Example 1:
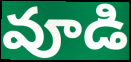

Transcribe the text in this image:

వూడి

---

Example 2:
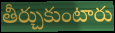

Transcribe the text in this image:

తీర్చుకుంటారు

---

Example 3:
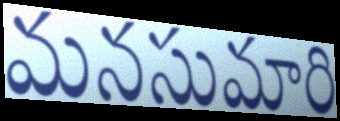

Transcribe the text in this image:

మనసుమారి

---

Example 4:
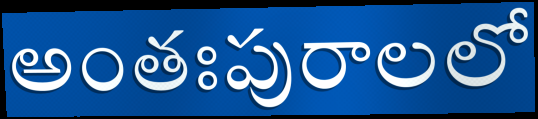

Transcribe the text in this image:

అంతఃపురాలలో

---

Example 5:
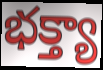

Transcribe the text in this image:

భక్త్యా